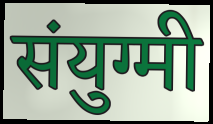
संयुग्मी